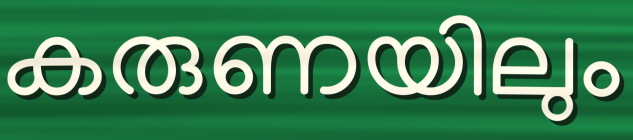
കരുണയിലും